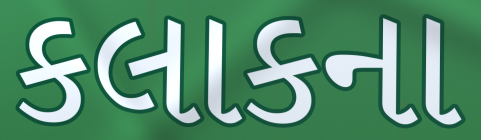
કલાકના